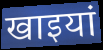
खाइयां